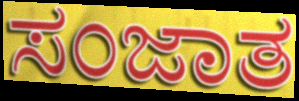
ಸಂಜಾತ